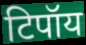
टिपॉय